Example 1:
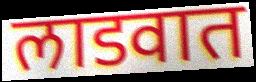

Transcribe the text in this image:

लाडवात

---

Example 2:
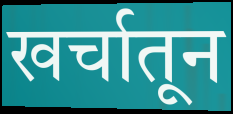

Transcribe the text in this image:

खर्चातून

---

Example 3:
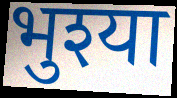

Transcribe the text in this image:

भुश्या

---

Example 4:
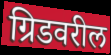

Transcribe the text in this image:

ग्रिडवरील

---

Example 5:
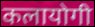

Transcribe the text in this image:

कलायोगी